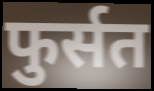
फुर्सत